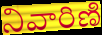
నివారిణి